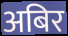
अबिर